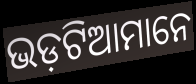
ଭଡ଼ଟିଆମାନେ